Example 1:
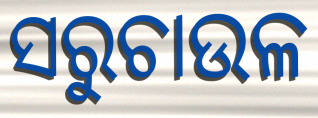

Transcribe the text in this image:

ସରୁଚାଉଳ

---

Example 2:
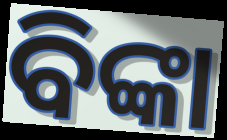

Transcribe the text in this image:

ବିଙ୍କା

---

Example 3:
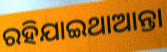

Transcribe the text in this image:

ରହିଯାଇଥାଆନ୍ତା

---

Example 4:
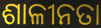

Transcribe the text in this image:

ଶାଳୀନତା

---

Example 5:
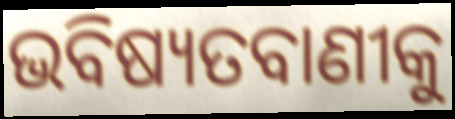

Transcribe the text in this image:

ଭବିଷ୍ୟତବାଣୀକୁ